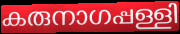
കരുനാഗപ്പള്ളി